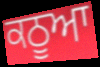
ਕਠੂਆ